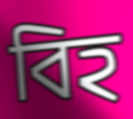
বিহ